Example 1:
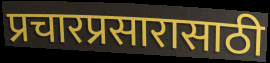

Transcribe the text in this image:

प्रचारप्रसारासाठी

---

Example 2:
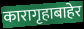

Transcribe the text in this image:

कारागृहाबाहेर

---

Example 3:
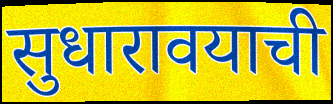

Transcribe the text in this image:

सुधारावयाची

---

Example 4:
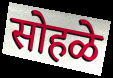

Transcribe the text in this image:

सोहळे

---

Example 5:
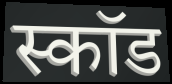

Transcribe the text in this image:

स्कॉड